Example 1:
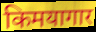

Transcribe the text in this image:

किमयागार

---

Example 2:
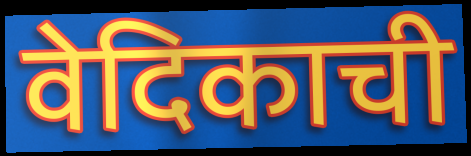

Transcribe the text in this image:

वेदिकाची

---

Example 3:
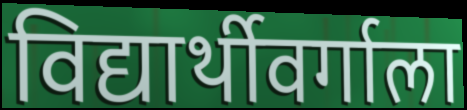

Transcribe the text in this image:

विद्यार्थीवर्गाला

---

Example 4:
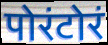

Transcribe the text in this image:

पोरंटोरं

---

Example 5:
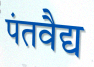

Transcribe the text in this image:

पंतवैद्य